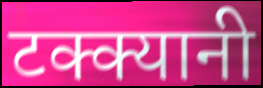
टक्क्यानी